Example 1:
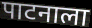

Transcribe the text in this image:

पाटनाला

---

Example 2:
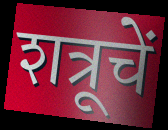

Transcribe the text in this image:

शत्रूचें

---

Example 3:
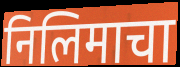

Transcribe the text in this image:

निलिमाचा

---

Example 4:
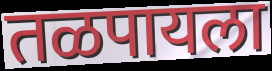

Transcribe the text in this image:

तळपायला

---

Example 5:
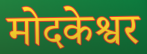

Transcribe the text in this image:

मोदकेश्वर